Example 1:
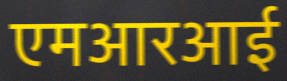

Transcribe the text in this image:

एमआरआई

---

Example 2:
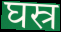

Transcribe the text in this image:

घस्र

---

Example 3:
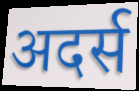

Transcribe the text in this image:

अदर्स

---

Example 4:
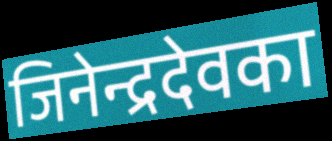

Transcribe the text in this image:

जिनेन्द्रदेवका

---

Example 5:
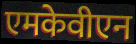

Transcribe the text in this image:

एमकेवीएन